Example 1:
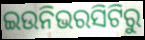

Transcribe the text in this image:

ଇଉନିଭରସିଟିରୁ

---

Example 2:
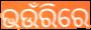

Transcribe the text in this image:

ଭଉଁରିରେ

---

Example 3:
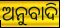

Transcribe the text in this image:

ଅନୁବାଦି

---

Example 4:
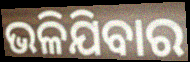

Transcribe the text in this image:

ଭଳିଯିବାର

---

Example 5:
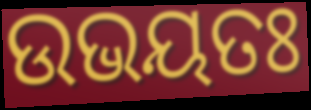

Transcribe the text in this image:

ଉଭୟତଃ